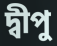
দ্বীপু